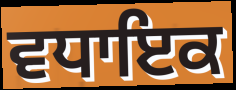
ਵਧਾਇਕ